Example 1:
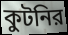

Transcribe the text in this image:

কুটনির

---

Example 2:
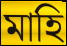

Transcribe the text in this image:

মাহি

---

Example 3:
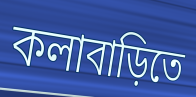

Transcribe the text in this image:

কলাবাড়িতে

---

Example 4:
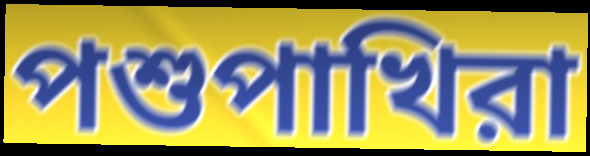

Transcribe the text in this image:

পশুপাখিরা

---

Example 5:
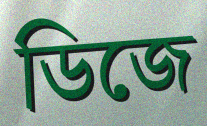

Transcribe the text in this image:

ডিজে